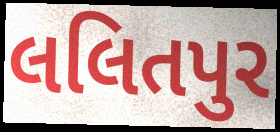
લલિતપુર